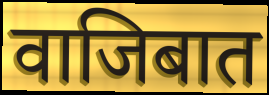
वाजिबात